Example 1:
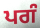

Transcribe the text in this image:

ਪਗੰ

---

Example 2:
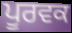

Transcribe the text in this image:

ਪੂਰਵਕ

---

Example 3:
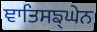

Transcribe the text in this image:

ਞਾਤਿਸਙ੍ਘੇਨ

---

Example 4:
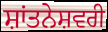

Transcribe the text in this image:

ਸ਼ਾਂਤਨੇਸ਼ਵਰੀ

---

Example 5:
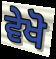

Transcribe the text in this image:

ਵੇਖੋ